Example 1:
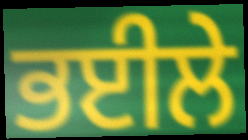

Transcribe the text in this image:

ਭਈਲੇ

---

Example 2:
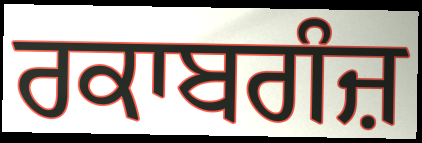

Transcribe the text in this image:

ਰਕਾਬਗੰਜ਼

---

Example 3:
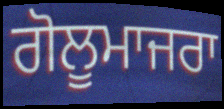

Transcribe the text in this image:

ਗੋਲੂਮਾਜਰਾ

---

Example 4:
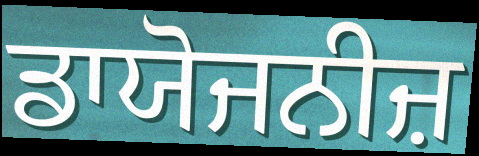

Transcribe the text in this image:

ਡਾਯੋਜਨੀਜ਼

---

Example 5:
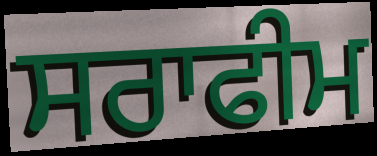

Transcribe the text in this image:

ਸਰਾਫੀਮ